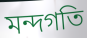
মন্দগতি